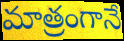
మాత్రంగానే